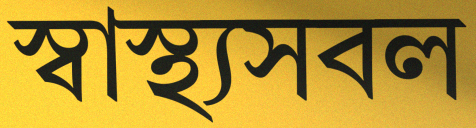
স্বাস্থ্যসবল